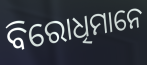
ବିରୋଧିମାନେ